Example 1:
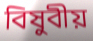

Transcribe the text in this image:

বিষুবীয়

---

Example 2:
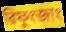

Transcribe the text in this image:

রিফুংজাং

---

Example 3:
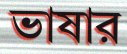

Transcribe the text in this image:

ভাষার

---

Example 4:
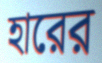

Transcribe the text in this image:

হারের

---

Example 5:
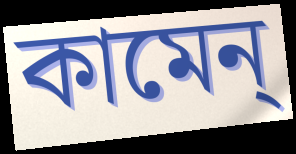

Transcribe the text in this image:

কামেন্